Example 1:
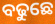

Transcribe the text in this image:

ବଢୁଛେ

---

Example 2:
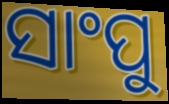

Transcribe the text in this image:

ସାଂପୁ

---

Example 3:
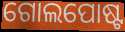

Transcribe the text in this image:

ଗୋଲପୋଷ୍ଟ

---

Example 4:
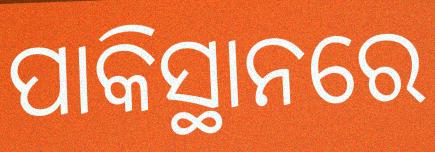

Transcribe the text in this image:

ପାକିସ୍ଥାନରେ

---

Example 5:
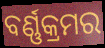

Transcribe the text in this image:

ବର୍ଣ୍ଣକ୍ରମର